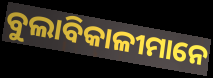
ବୁଲାବିକାଳୀମାନେ